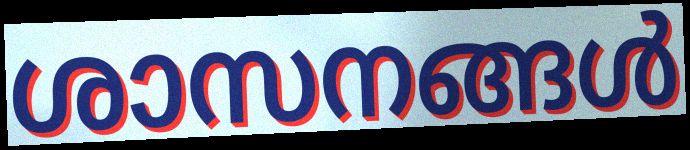
ശാസനങ്ങൾ